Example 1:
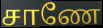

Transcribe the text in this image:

சாணே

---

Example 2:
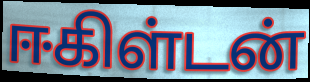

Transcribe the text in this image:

ஈகிள்டன்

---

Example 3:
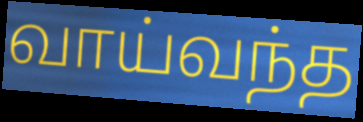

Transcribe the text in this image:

வாய்வந்த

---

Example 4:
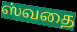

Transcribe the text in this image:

ஸ்வதை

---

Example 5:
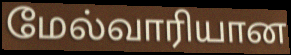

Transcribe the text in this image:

மேல்வாரியான